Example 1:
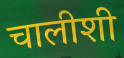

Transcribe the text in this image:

चालीशी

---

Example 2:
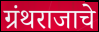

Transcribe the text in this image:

ग्रंथराजाचे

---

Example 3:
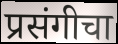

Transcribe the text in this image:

प्रसंगीचा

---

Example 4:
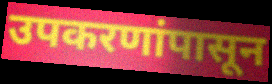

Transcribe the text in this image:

उपकरणांपासून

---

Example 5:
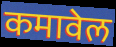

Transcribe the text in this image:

कमावेल